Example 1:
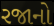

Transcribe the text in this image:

રજાનો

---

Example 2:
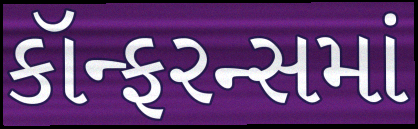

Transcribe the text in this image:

કૉન્ફરન્સમાં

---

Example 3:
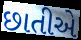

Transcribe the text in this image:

છાતીએ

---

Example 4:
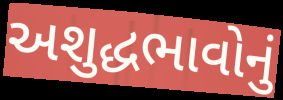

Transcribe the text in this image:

અશુદ્ધભાવોનું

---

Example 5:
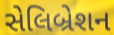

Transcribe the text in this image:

સેલિબ્રેશન